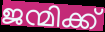
ജന്മിക്ക്